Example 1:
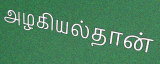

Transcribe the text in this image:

அழகியல்தான்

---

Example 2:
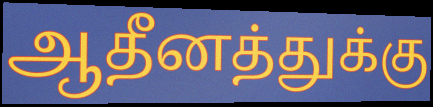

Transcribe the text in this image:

ஆதீனத்துக்கு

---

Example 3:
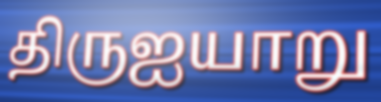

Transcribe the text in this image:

திருஐயாறு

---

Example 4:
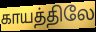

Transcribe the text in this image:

காயத்திலே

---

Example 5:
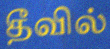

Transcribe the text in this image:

தீவில்